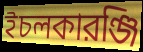
ইচলকারঞ্জি